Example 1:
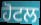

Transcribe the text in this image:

ਹੋਟਲ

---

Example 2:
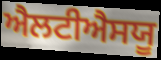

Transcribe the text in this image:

ਐਲਟੀਐਸਯੂ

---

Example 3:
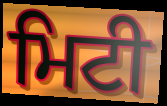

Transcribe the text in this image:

ਮਿਟੀ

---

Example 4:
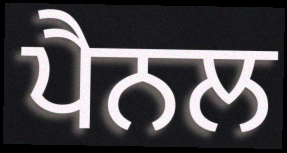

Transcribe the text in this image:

ਪੈਨਲ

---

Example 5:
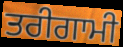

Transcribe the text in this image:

ਤਰੀਗਾਮੀ